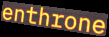
enthrone